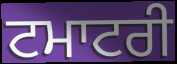
ਟਮਾਟਰੀ